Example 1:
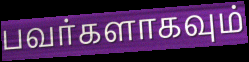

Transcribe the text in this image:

பவர்களாகவும்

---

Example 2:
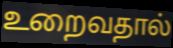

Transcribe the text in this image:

உறைவதால்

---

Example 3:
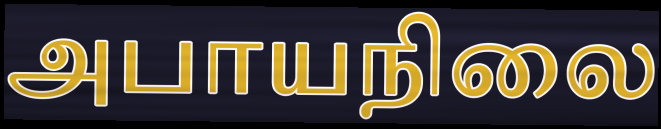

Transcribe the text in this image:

அபாயநிலை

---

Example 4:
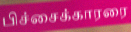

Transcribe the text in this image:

பிச்சைக்காரரை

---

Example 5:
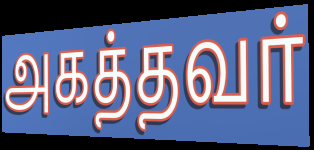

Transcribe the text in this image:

அகத்தவர்